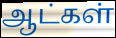
ஆட்கள்